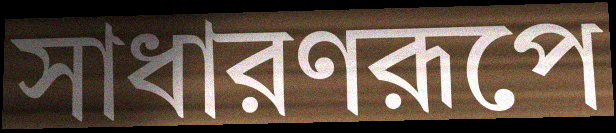
সাধারণরূপে